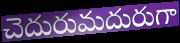
చెదురుమదురుగా